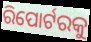
ରିପୋର୍ଟରକୁ